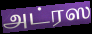
அட்ரஸ